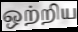
ஒற்றிய